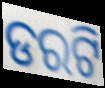
ଡରଟି